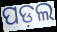
ପଡ଼ଲ